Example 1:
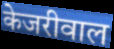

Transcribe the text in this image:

केजरीवाल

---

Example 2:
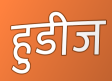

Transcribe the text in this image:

हुडीज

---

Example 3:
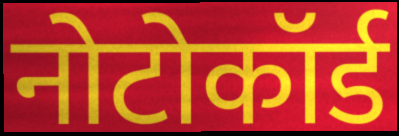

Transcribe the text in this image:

नोटोकॉर्ड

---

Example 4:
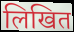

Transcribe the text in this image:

लिखित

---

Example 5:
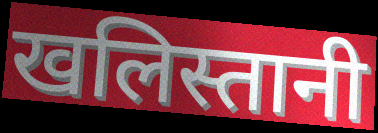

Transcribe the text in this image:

खलिस्तानी